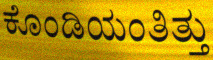
ಕೊಂಡಿಯಂತಿತ್ತು